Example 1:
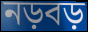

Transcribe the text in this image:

নড়বড়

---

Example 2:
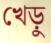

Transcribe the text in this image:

খেড়ু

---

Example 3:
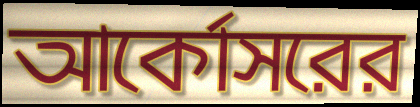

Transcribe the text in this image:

আর্কোসরের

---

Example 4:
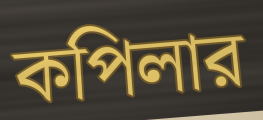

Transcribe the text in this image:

কপিলার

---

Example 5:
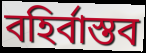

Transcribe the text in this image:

বহির্বাস্তব